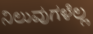
ನಿಲುವುಗಳೆಲ್ಲ